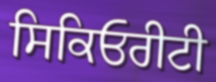
ਸਿਕਿਓਰੀਟੀ